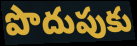
పొదుపుకు